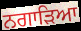
ਨਗਾੜਿਆ